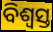
ବିଶ୍ୱସ୍ତ